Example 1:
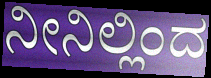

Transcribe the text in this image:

ನೀನಿಲ್ಲಿಂದ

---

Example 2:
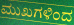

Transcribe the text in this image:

ಮುಖಗಳಿಂದ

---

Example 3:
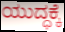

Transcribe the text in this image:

ಯುದ್ಧಕ್ಕೆ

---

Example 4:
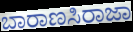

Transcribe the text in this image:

ಬಾರಾಣಸಿರಾಜಾ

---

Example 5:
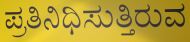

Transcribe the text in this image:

ಪ್ರತಿನಿಧಿಸುತ್ತಿರುವ